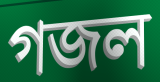
গজল